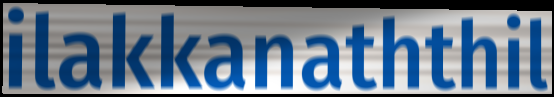
ilakkanaththil